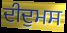
ਦੀਦੁਮਸ